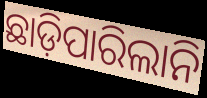
ଛାଡ଼ିପାରିଲାନି